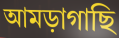
আমড়াগাছি